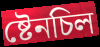
ষ্টেনচিল